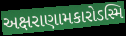
અક્ષરાણામકારોઽસ્મિ